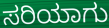
ಸರಿಯಾಗು